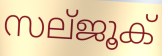
സല്ജൂക്